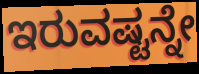
ಇರುವಷ್ಟನ್ನೇ